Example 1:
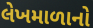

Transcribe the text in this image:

લેખમાળાનો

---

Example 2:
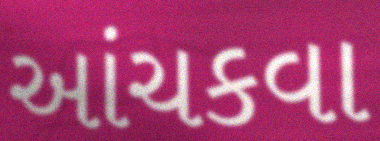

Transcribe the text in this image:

આંચકવા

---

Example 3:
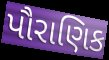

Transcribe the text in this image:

પૌરાણિક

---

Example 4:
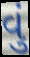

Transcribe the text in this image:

વું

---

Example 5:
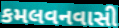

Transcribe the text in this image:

કમલવનવાસી